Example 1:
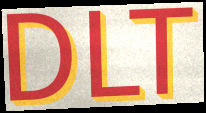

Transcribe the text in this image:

DLT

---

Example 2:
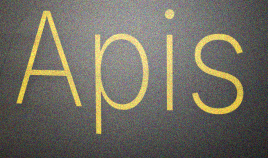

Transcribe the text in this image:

Apis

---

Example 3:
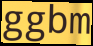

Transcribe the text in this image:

ggbm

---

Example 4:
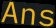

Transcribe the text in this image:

Ans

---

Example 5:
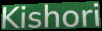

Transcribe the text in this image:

Kishori